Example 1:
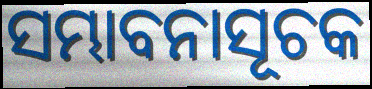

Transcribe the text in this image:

ସମ୍ଭାବନାସୂଚକ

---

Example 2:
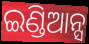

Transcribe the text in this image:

ଇଣ୍ଡିଆନ୍ସ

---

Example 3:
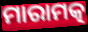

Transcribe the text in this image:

ମାରାମତ୍କ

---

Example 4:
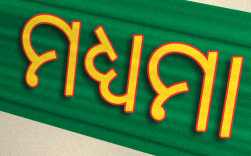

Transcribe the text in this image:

ମଧ୍ୟମା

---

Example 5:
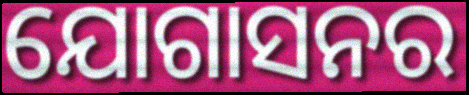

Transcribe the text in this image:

ଯୋଗାସନର